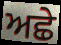
ਅਛੇ